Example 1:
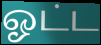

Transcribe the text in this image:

ஓட்ட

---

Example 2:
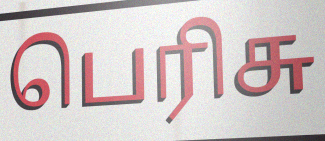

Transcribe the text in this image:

பெரிசு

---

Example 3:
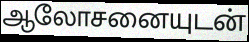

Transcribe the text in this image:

ஆலோசனையுடன்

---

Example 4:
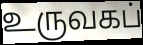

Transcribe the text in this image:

உருவகப்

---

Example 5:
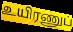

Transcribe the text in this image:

உயிரணுப்